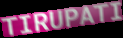
TIRUPATI